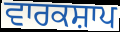
ਵਾਰਕਸ਼ਾਪ